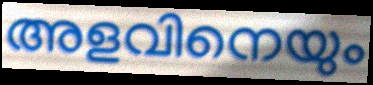
അളവിനെയും